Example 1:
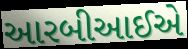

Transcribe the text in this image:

આરબીઆઈએ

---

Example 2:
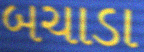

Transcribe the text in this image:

બચાડા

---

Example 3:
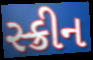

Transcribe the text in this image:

સ્ક્રીન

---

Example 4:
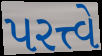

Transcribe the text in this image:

પરત્ત્વે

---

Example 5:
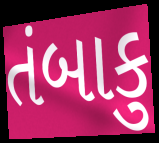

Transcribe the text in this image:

તંબાકુ